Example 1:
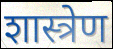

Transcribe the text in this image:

शास्त्रेण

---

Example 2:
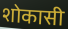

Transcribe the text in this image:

शोकासी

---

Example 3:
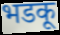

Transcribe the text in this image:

भडकू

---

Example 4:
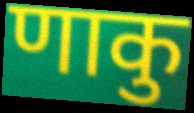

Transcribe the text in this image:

णाकु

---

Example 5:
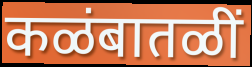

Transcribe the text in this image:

कळंबातळीं